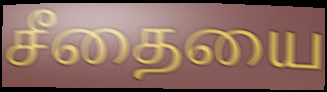
சீதையை